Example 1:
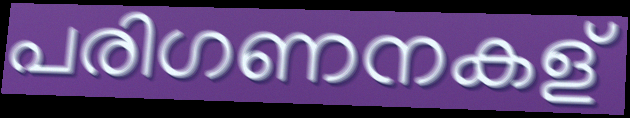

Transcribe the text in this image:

പരിഗണനകള്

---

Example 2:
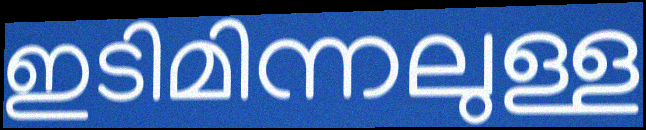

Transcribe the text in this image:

ഇടിമിന്നലുള്ള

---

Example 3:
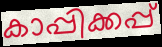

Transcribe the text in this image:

കാപ്പിക്കപ്പ്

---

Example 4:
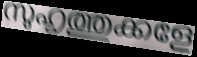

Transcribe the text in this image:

സുഹൃത്തുക്കളേ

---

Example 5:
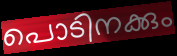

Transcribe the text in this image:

പൊടിനക്കും